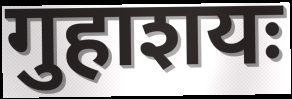
गुहाशयः